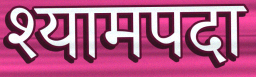
श्यामपदा